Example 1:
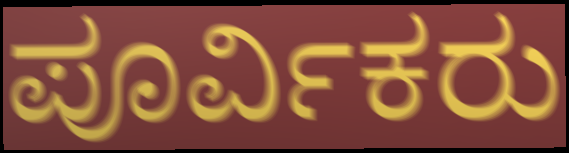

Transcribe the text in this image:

ಪೂರ್ವಿಕರು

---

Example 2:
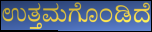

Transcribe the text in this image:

ಉತ್ತಮಗೊಂಡಿದೆ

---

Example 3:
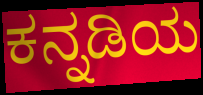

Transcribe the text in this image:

ಕನ್ನಡಿಯ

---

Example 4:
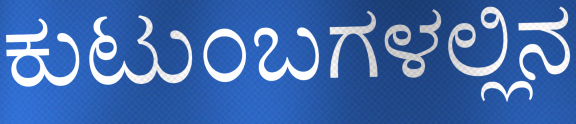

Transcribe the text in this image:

ಕುಟುಂಬಗಳಲ್ಲಿನ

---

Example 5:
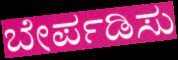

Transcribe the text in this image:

ಬೇರ್ಪಡಿಸು